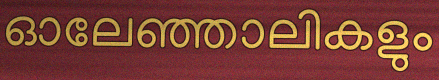
ഓലേഞ്ഞാലികളും